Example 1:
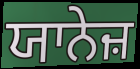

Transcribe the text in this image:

ਯਾਨੇਜ਼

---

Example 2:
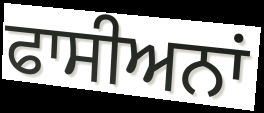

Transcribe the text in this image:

ਫਾਸੀਅਨਾਂ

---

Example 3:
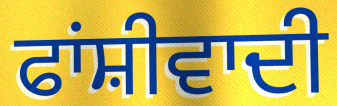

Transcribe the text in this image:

ਫਾਂਸ਼ੀਵਾਦੀ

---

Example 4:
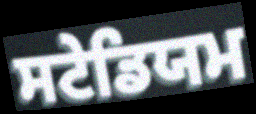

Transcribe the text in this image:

ਸਟੇਡਿਯਮ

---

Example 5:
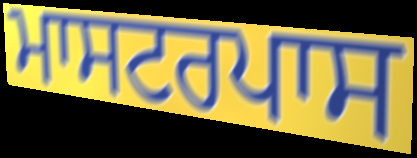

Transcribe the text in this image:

ਮਾਸਟਰਪਾਸ